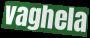
vaghela